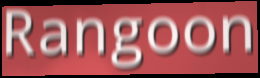
Rangoon